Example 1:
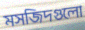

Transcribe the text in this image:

মসজিদগুলো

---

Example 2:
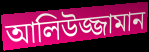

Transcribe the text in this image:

আলিউজ্জামান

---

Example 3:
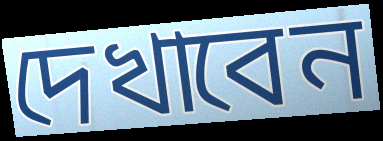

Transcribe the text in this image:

দেখাবেন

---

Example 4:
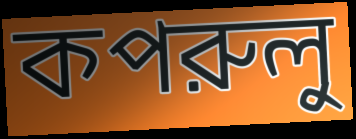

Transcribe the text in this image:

কপরুলু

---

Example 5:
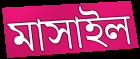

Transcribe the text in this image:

মাসাইল